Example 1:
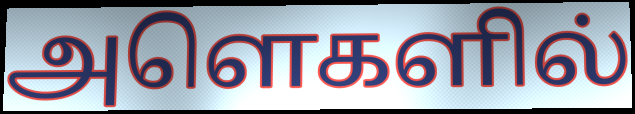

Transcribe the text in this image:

அளெகளில்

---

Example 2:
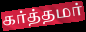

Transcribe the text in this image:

கர்த்தமர்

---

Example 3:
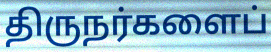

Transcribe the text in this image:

திருநர்களைப்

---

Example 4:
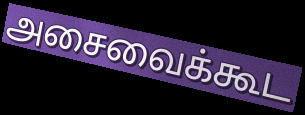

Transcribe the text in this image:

அசைவைக்கூட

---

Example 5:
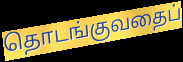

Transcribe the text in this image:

தொடங்குவதைப்